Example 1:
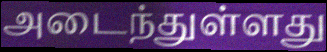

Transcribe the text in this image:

அடைந்துள்ளது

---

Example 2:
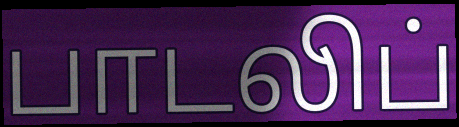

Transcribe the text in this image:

பாடலிப்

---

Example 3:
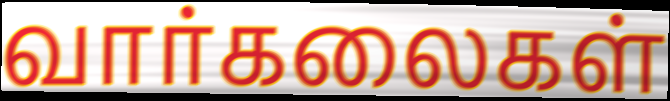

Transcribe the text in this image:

வார்கலைகள்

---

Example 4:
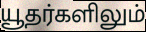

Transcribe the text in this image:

யூதர்களிலும்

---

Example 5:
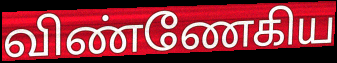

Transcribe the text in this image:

விண்ணேகிய